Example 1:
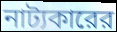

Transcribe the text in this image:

নাট্যকারের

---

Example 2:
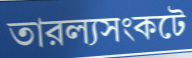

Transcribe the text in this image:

তারল্যসংকটে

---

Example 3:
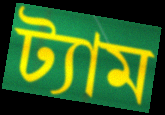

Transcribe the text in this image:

ট্যাম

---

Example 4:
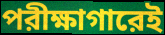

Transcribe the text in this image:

পরীক্ষাগারেই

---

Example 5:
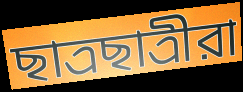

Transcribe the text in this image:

ছাত্রছাত্রীরা